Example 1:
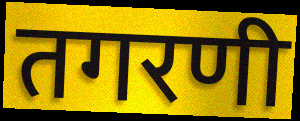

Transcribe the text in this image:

तगरणी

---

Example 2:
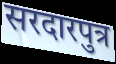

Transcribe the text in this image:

सरदारपुत्र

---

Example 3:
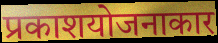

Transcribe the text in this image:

प्रकाशयोजनाकार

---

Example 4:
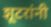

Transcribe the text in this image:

शूटरांनी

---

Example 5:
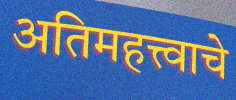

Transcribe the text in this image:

अतिमहत्त्वाचे